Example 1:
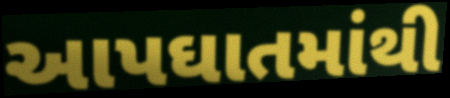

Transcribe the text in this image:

આપઘાતમાંથી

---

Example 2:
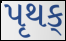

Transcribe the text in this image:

પૃથક્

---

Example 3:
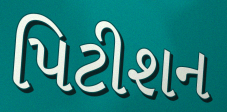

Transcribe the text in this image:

પિટીશન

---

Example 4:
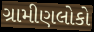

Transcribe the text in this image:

ગ્રામીણલોકો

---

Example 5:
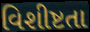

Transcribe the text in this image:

વિશીષ્ટતા